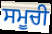
ਸਮੂਚੀ